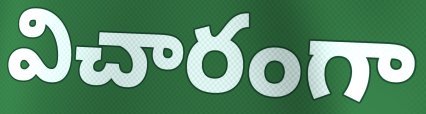
విచారంగా